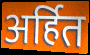
अर्हित